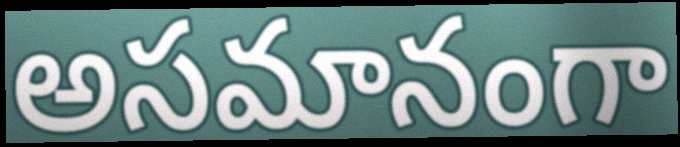
అసమానంగా